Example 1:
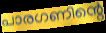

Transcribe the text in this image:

പാരഗണിന്റെ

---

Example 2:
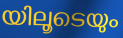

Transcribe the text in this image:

യിലൂടെയും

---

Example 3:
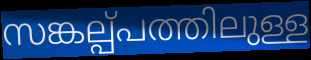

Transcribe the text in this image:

സങ്കല്പ്പത്തിലുള്ള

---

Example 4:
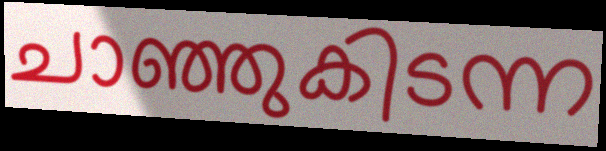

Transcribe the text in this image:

ചാഞ്ഞുകിടന്ന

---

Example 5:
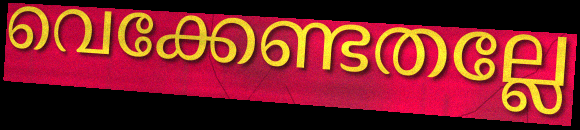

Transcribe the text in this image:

വെക്കേണ്ടതല്ലേ